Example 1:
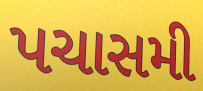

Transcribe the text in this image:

પચાસમી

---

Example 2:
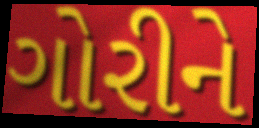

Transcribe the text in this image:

ગોરીને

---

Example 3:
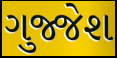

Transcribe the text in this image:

ગુજ્જેશ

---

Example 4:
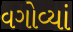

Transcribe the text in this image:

વગોવ્યાં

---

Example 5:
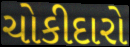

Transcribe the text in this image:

ચોકીદારો